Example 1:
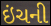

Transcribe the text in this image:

ઇંચની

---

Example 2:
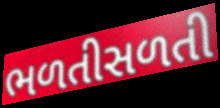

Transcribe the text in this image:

ભળતીસળતી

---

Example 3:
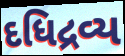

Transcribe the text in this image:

દધિદ્રવ્ય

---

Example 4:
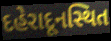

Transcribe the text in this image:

દહેરાદૂનસ્થિત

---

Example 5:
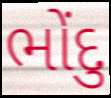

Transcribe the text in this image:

ભોંદુ